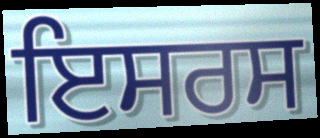
ਇਸਰਸ